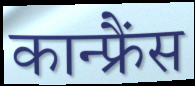
कान्फ्रैंस